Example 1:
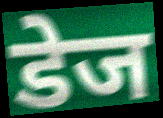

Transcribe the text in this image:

डेज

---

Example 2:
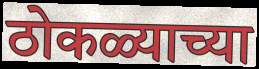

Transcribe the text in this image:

ठोकळ्याच्या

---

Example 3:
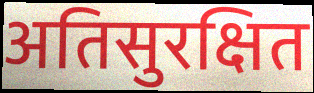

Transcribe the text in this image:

अतिसुरक्षित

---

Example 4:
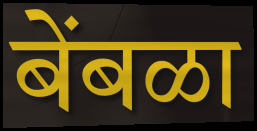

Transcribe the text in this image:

बेंबळा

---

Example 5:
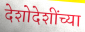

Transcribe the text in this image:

देशोदेशींच्या